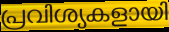
പ്രവിശ്യകളായി